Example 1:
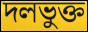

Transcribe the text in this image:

দলভুক্ত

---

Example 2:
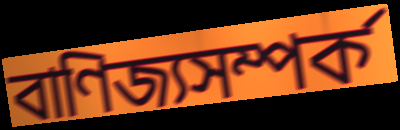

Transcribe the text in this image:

বাণিজ্যসম্পর্ক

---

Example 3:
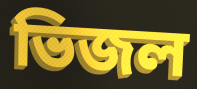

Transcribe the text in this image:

ভিজল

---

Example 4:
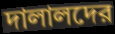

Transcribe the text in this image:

দালালদের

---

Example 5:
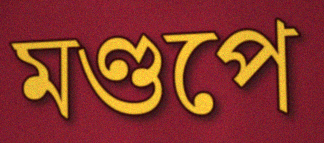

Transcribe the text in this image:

মণ্ডপে